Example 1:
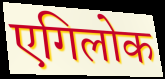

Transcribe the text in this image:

एगिलोक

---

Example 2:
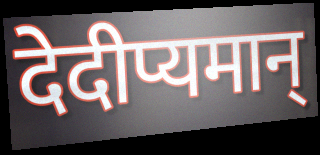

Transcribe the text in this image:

देदीप्यमान्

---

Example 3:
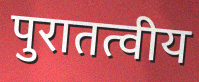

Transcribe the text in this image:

पुरातत्वीय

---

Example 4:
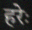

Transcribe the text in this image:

हरेः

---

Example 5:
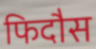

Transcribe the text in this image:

फिदौस